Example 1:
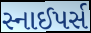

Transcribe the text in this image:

સ્નાઈપર્સ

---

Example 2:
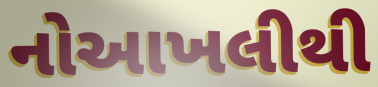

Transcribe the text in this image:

નોઆખલીથી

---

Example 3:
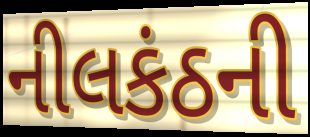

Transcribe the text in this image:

નીલકંઠની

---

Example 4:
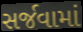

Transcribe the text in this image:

સર્જવામાં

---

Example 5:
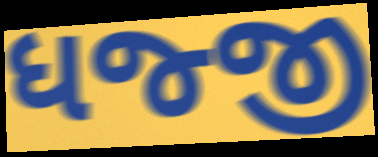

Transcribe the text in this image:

ધજ્જી